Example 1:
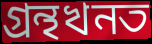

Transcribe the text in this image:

গ্ৰন্থখনত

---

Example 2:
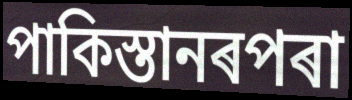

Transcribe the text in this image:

পাকিস্তানৰপৰা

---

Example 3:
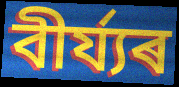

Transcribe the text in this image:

বীৰ্য্যৰ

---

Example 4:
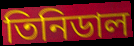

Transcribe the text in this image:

তিনিডাল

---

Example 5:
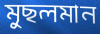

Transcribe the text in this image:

মুছলমান